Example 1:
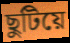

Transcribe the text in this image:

ছুটিয়ে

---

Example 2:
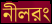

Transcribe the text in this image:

নীলরং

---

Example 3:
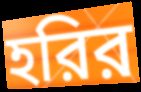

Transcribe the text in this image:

হরির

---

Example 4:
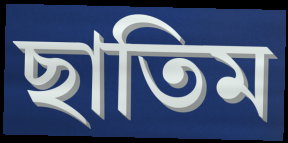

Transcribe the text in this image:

ছাতিম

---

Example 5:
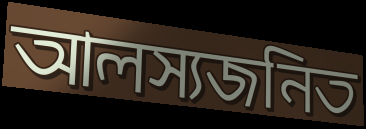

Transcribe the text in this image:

আলস্যজনিত